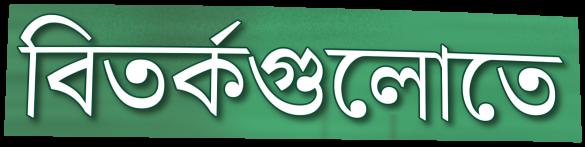
বিতর্কগুলোতে